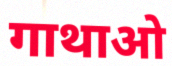
गाथाओ